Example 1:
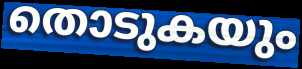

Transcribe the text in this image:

തൊടുകയും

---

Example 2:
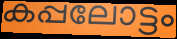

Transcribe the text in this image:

കപ്പലോട്ടം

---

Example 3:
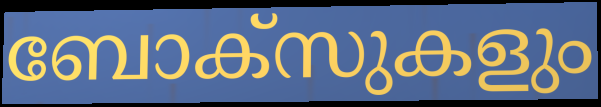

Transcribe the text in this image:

ബോക്സുകളും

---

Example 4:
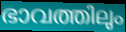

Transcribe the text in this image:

ഭാവത്തിലും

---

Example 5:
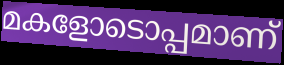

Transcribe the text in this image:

മകളോടൊപ്പമാണ്